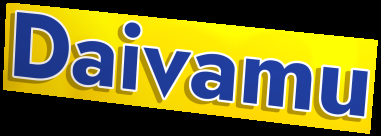
Daivamu